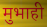
मुभाही